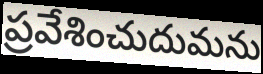
ప్రవేశించుదుమను